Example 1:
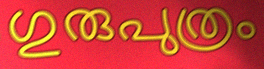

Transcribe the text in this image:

ഗുരുപുത്രം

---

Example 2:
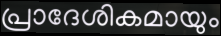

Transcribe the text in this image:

പ്രാദേശികമായും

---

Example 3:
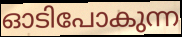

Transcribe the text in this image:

ഓടിപോകുന്ന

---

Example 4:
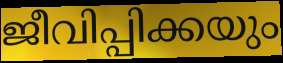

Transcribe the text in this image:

ജീവിപ്പിക്കയും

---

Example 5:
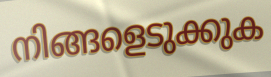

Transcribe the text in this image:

നിങ്ങളെടുക്കുക